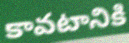
కావటానికి